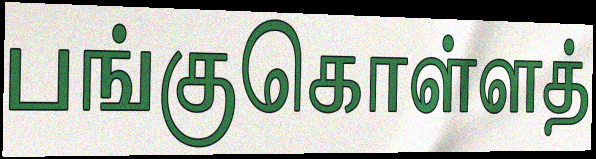
பங்குகொள்ளத்